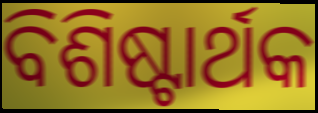
ବିଶିଷ୍ଟାର୍ଥକ